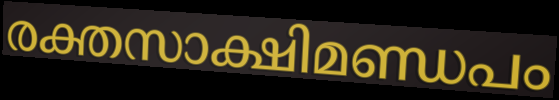
രക്തസാക്ഷിമണ്ഡപം